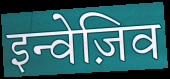
इन्वेज़िव